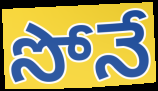
సోనే